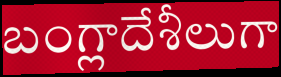
బంగ్లాదేశీలుగా